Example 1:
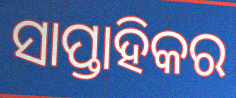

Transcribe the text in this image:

ସାପ୍ତାହିକର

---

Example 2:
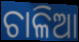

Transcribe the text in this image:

ଚାଳିଆ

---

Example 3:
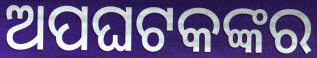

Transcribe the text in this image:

ଅପଘଟକଙ୍କର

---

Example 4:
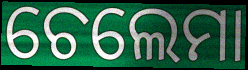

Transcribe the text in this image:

ଚେଲେମା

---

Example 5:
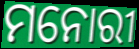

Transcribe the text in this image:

ମନୋରୀ